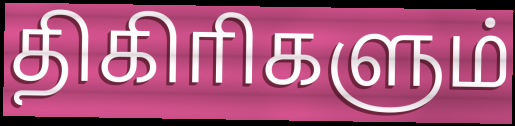
திகிரிகளும்